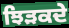
ਝਿੜਕਦੇ